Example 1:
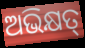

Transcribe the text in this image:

ଅଭିକ୍ଷତ୍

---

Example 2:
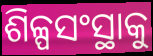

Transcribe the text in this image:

ଶିଳ୍ପସଂସ୍ଥାକୁ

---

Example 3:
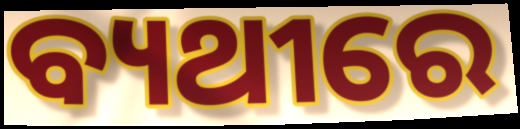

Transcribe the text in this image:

ବ୍ୟଥୀରେ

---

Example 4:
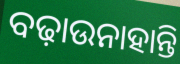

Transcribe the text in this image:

ବଢ଼ାଉନାହାନ୍ତି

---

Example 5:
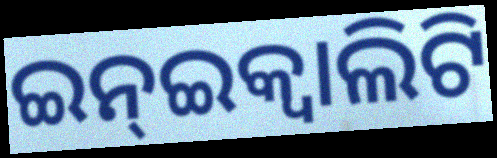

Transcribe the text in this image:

ଇନ୍ଇକ୍ଵାଲିଟି